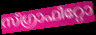
സ്ഗ്രാഫിറ്റോ